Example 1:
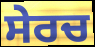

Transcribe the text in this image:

ਸੇਰਚ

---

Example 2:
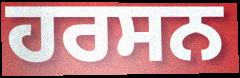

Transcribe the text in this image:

ਹਰਸਨ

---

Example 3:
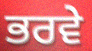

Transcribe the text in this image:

ਭਰਵੇ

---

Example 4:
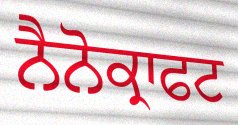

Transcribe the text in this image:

ਨੈਨੋਕ੍ਰਾਫਟ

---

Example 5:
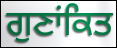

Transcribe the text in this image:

ਗੁਣਾਂਕਿਤ